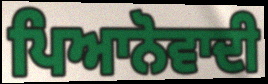
ਪਿਆਨੋਵਾਦੀ